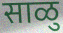
साळु